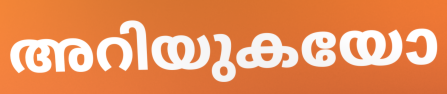
അറിയുകയോ